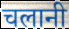
चलानी